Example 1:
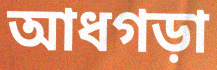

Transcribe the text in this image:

আধগড়া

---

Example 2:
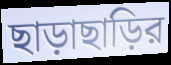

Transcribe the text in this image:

ছাড়াছাড়ির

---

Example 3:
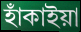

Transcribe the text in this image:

হাঁকাইয়া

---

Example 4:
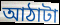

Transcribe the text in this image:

আঠাটা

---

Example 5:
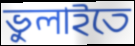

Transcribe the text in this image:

ভুলাইতে